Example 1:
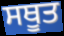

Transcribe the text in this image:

ਸਥੂਤ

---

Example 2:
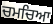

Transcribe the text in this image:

ਚਮਚਿਆ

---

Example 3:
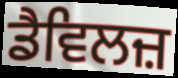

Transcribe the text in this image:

ਡੈਵਿਲਜ਼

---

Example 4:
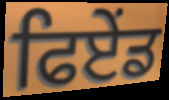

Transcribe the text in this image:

ਫਿਏਂਡ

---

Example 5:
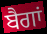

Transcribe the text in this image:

ਬੈਗਾਂ